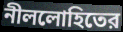
নীললোহিতের